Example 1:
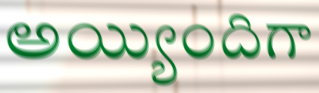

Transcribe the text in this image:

అయ్యిందిగా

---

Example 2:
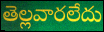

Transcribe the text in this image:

తెల్లవారలేదు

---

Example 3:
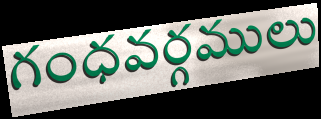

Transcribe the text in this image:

గంధవర్గములు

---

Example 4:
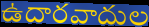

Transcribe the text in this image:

ఉదారవాదుల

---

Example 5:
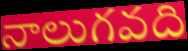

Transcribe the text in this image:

నాలుగవది